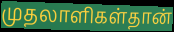
முதலாளிகள்தான்